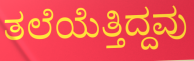
ತಲೆಯೆತ್ತಿದ್ದವು